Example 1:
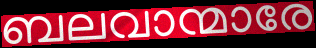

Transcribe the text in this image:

ബലവാന്മാരേ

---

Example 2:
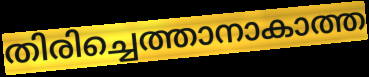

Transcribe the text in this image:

തിരിച്ചെത്താനാകാത്ത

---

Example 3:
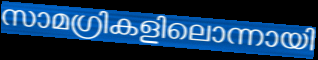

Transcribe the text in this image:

സാമഗ്രികളിലൊന്നായി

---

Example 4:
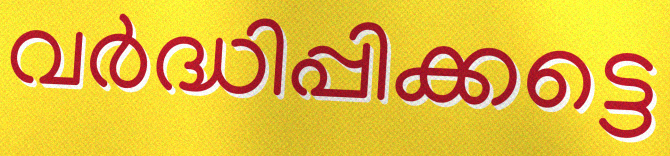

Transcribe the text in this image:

വർദ്ധിപ്പിക്കട്ടെ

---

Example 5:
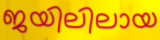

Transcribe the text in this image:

ജയിലിലായ